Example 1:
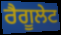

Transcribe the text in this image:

ਰੈਗੂਲੇਟ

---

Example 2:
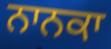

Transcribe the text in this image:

ਨਾਨਕਾ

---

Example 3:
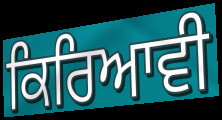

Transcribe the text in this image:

ਕਿਰਿਆਵੀ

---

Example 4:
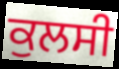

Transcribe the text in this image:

ਕੁਲਸੀ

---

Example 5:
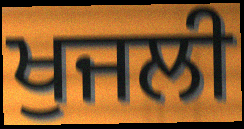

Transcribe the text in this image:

ਖੁਜਲੀ